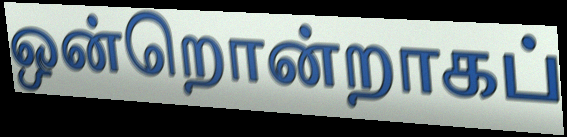
ஒன்றொன்றாகப்